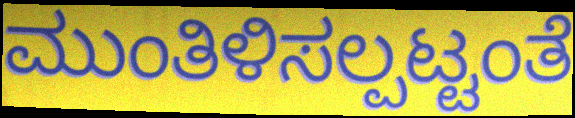
ಮುಂತಿಳಿಸಲ್ಪಟ್ಟಂತೆ